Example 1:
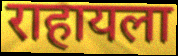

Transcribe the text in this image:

राहायला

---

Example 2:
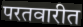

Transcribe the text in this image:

परतवारीत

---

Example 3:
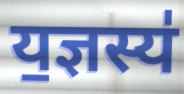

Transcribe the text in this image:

य॒ज्ञस्य॑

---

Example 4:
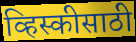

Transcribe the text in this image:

व्हिस्कीसाठी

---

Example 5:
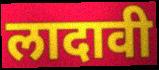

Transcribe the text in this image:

लादावी